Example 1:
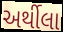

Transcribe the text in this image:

અર્થીલા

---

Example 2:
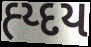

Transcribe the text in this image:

હ્ય્દય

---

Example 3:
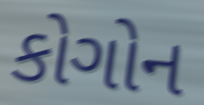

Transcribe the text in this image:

કોગોન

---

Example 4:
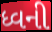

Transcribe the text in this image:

ધ્વની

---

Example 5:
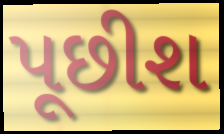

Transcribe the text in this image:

પૂછીશ